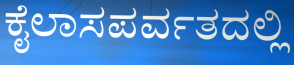
ಕೈಲಾಸಪರ್ವತದಲ್ಲಿ